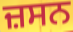
ਜ਼ਸਨ